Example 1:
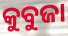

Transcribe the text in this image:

କୁବୁଜା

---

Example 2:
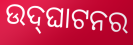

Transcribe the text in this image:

ଉଦ୍‌ଘାଟନର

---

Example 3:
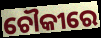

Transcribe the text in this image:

ଚୌକୀରେ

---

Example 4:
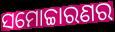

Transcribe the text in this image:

ସମୋଚ୍ଚାରଣର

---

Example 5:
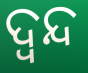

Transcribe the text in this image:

ଦ୍ଵନ୍ଦ